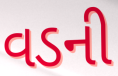
વડની